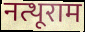
नत्थूराम